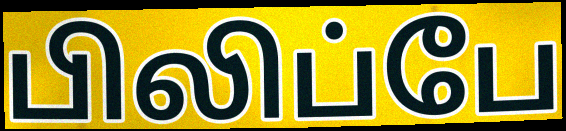
பிலிப்பே